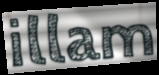
illam